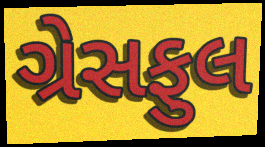
ગ્રેસફુલ